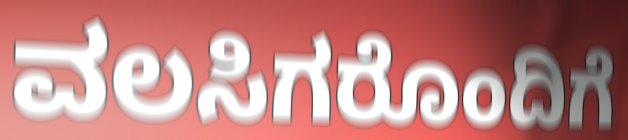
ವಲಸಿಗರೊಂದಿಗೆ